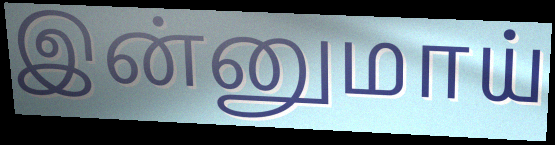
இன்னுமாய்